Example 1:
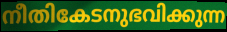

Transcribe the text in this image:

നീതികേടനുഭവിക്കുന്ന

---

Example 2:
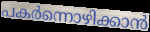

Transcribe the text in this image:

പകർന്നൊഴിക്കാൻ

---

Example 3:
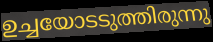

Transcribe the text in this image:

ഉച്ചയോടടുത്തിരുന്നു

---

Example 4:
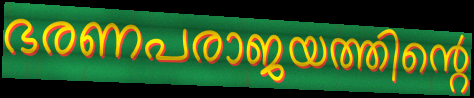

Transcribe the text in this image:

ഭരണപരാജയത്തിന്റെ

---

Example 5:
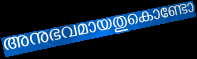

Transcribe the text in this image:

അനുഭവമായതുകൊണ്ടോ